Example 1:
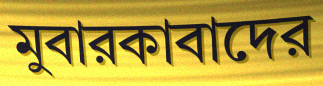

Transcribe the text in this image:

মুবারকাবাদের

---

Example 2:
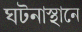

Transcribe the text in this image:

ঘটনাস্থানে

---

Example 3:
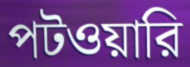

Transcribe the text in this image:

পটওয়ারি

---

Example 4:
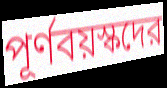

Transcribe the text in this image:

পূর্ণবয়স্কদের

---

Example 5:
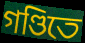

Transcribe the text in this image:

গণ্ডিতে